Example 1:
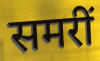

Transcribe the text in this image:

समरीं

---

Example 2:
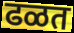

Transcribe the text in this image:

ढळत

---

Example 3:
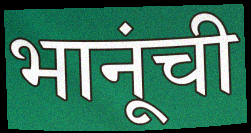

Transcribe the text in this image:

भानूंची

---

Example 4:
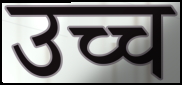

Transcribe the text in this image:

उच्च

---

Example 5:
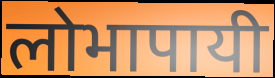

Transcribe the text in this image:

लोभापायी